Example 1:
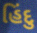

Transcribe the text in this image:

હિંદુ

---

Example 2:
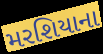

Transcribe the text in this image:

મરશિયાના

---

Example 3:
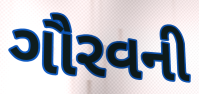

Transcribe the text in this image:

ગૌરવની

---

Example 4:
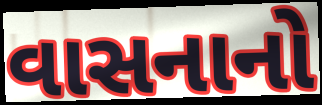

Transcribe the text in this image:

વાસનાનો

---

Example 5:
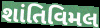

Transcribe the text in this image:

શાંતિવિમલ